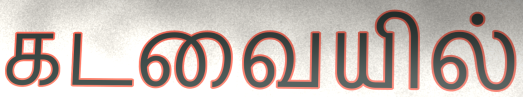
கடவையில்